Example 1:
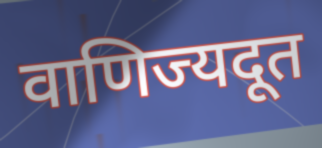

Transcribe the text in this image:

वाणिज्यदूत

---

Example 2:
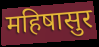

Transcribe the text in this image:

महिषासुर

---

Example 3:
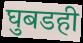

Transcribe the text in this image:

घुबडही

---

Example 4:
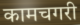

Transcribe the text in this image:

कामचगरी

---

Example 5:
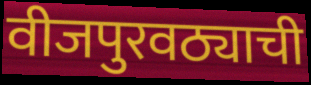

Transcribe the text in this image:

वीजपुरवठ्याची